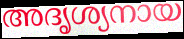
അദൃശ്യനായ